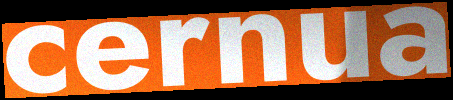
cernua